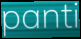
panti